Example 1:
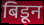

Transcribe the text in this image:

बिडून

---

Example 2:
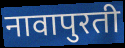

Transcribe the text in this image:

नावापुरती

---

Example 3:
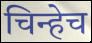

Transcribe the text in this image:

चिन्हेच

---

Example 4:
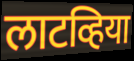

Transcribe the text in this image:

लाटव्हिया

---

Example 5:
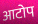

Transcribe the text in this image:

आटोप